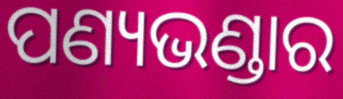
ପଣ୍ୟଭଣ୍ଡାର